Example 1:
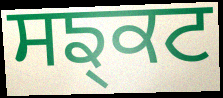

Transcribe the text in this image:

ਸਙ੍ਕਟ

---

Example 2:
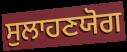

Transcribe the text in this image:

ਸੁਲਾਹਣਯੋਗ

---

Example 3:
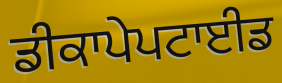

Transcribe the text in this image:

ਡੀਕਾਪੇਪਟਾਈਡ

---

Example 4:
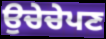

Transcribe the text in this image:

ਉਚੇਚੇਪਣ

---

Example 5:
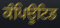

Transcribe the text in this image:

ਕੰਪਿਊਟਿਡ